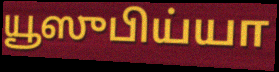
யூஸுபிய்யா